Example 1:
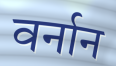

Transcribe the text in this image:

वर्नान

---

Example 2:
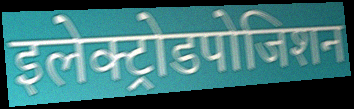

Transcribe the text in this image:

इलेक्ट्रोडपोजिशन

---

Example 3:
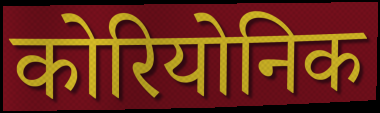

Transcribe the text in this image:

कोरियोनिक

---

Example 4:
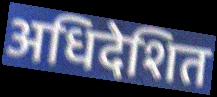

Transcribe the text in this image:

अधिदेशित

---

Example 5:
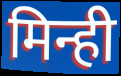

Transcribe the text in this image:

मिन्ही